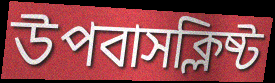
উপবাসক্লিষ্ট